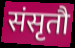
संसृतौ